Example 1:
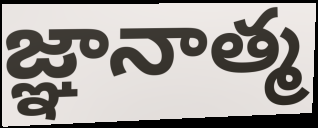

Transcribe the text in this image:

జ్ఞానాత్మ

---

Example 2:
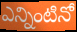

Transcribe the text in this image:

ఎన్నింటినో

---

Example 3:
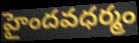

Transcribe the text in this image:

హైందవధర్మం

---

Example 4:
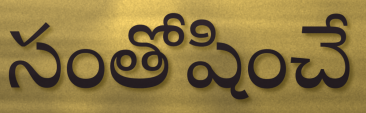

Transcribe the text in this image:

సంతోషించే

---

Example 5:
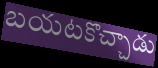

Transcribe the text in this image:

బయటకొచ్చాడు